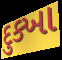
દુક્ખા